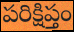
పరిక్షిప్తం